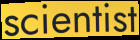
scientist